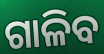
ଗାଳିବ